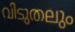
വിടുതലും